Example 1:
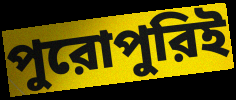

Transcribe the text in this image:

পুরোপুরিই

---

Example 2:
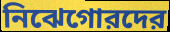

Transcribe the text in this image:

নিঝেগোরদের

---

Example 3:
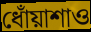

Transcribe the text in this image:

ধোঁয়াশাও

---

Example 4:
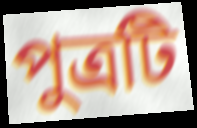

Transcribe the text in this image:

পুত্রটি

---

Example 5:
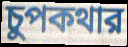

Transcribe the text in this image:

চুপকথার